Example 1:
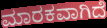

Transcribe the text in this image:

ಮಾರಕವಾಗಿದೆ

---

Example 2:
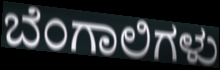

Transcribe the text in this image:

ಬೆಂಗಾಲಿಗಳು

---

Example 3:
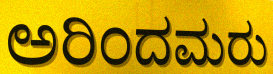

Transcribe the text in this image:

ಅರಿಂದಮರು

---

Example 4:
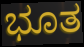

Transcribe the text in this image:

ಭೂತ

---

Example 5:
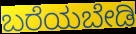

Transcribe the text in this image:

ಬರೆಯಬೇಡಿ